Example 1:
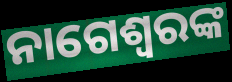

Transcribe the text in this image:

ନାଗେଶ୍ୱରଙ୍କ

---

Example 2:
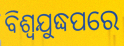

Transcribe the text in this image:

ବିଶ୍ୱଯୁଦ୍ଧପରେ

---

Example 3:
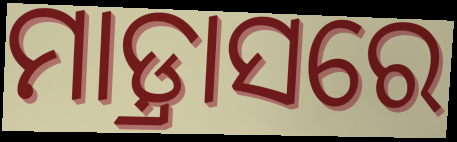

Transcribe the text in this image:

ମାଡ଼୍ରାସରେ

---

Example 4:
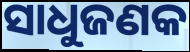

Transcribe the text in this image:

ସାଧୁଜଣକ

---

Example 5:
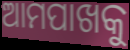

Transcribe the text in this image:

ଆମପାଖକୁ